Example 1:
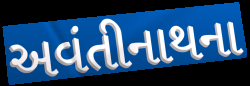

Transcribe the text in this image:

અવંતીનાથના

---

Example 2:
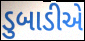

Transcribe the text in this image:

ડુબાડીએ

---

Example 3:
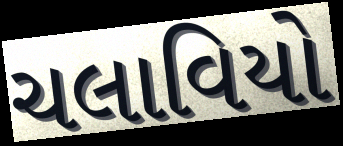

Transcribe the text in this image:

ચલાવિયો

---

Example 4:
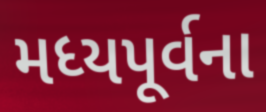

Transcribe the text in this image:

મધ્યપૂર્વના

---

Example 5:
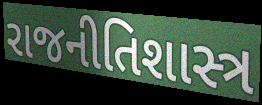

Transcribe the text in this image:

રાજનીતિશાસ્ત્ર